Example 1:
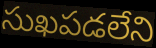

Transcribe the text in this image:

సుఖపడలేని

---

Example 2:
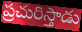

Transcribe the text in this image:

ప్రచురిస్తాడు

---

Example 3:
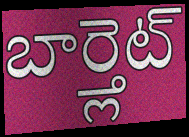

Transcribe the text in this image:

బార్త్లెట్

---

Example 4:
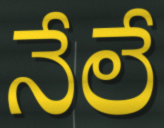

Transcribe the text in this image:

నేలే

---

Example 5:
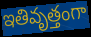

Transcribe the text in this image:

ఇతివృత్తంగా